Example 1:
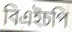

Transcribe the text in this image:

বিএইচপি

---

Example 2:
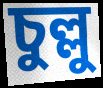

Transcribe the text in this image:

চুল্লু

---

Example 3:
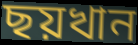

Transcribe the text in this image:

ছয়খান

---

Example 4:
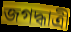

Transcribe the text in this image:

জগদ্ধাত্রী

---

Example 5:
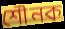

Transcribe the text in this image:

শৌনক